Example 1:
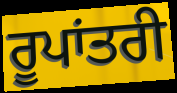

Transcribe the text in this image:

ਰੂਪਾਂਤਰੀ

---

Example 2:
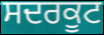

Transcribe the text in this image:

ਸਦਰਕੂਟ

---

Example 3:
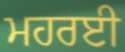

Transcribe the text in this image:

ਮਹਰਈ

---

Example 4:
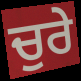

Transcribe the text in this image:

ਚੁਰੇ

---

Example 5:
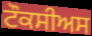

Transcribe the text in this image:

ਟੌਕਸੀਅਸ